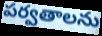
పర్వతాలను